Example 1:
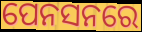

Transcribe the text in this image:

ପେନସନରେ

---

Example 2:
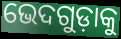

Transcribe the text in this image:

ଭେଦଗୁଡ଼ାକୁ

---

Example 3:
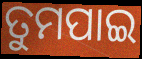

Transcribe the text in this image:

ତୁମପାଇ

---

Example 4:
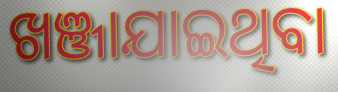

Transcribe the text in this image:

ଖଞ୍ଜାଯାଇଥିବା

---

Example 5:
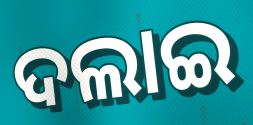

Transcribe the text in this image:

ଦଲାଇ